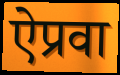
ऐप्रवा